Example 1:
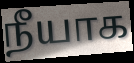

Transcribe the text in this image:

நீயாக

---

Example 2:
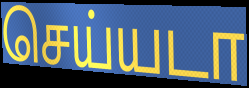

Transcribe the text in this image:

செய்யடா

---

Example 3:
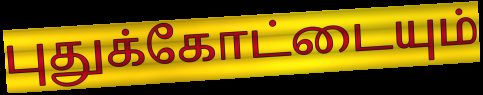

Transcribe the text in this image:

புதுக்கோட்டையும்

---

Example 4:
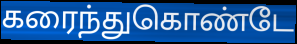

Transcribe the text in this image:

கரைந்துகொண்டே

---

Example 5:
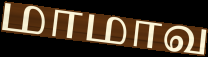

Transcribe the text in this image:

மாமாவ